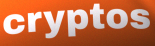
cryptos